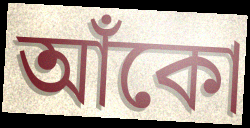
আঁকো